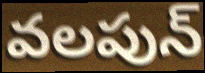
వలపున్